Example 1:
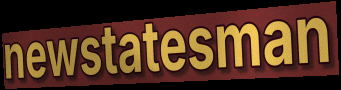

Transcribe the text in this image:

newstatesman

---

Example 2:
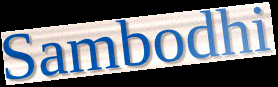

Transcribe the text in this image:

Sambodhi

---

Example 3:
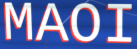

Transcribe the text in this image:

MAOI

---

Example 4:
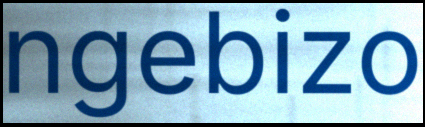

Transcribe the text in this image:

ngebizo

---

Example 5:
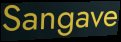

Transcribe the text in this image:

Sangave